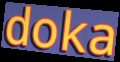
doka